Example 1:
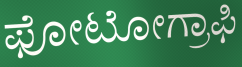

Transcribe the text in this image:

ಫೋಟೋಗ್ರಾಫಿ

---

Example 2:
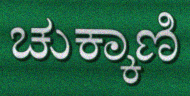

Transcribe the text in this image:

ಚುಕ್ಕಾಣಿ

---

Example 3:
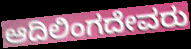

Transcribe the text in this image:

ಆದಿಲಿಂಗದೇವರು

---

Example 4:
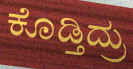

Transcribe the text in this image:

ಕೊಡ್ತಿದ್ರು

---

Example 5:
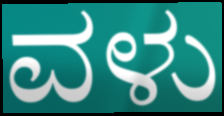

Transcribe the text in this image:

ವಳು